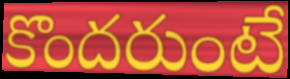
కొందరుంటే